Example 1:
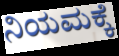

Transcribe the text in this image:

ನಿಯಮಕ್ಕೆ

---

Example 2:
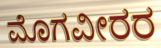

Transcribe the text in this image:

ಮೊಗವೀರರ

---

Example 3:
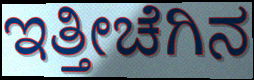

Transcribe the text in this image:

ಇತ್ತೀಚೆಗಿನ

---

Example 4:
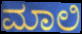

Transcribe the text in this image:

ಮಾಲಿ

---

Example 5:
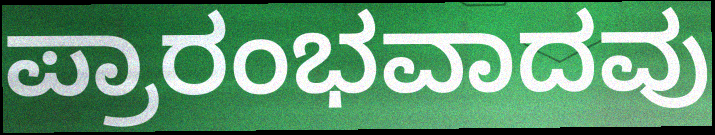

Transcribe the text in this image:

ಪ್ರಾರಂಭವಾದವು